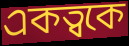
একত্বকে